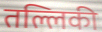
तल्लिकी